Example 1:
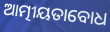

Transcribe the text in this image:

ଆତ୍ମୀୟତାବୋଧ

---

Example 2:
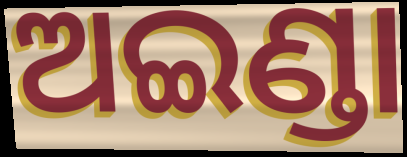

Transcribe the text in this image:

ଅଇଣ୍ଡା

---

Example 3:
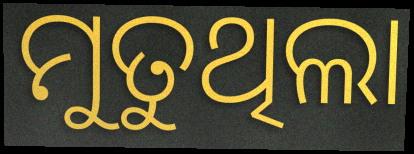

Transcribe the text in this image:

ମୁତୁଥିଲା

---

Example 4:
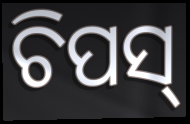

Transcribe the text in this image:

ଚିପସ୍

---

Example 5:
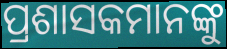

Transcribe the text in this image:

ପ୍ରଶାସକମାନଙ୍କୁ